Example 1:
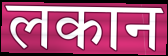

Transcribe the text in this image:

लकान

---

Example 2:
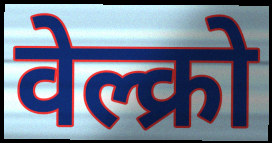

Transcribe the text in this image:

वेल्क्रो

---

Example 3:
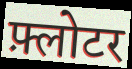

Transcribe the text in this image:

फ़्लोटर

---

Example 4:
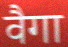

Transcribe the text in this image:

वैगा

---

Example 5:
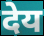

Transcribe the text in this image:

देय